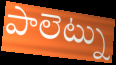
పాలెట్ను